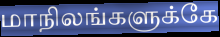
மாநிலங்களுக்கே